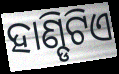
ହାଣ୍ଡିଟିଏ